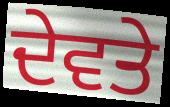
ਦੇਵਤੇ